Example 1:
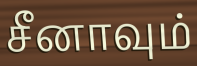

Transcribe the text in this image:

சீனாவும்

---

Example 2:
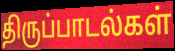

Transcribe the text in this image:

திருப்பாடல்கள்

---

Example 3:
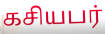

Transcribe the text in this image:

கசியபர்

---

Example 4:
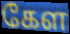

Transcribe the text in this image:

கேள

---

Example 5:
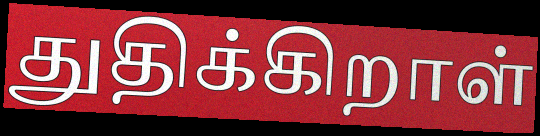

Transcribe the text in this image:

துதிக்கிறாள்